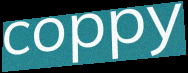
coppy